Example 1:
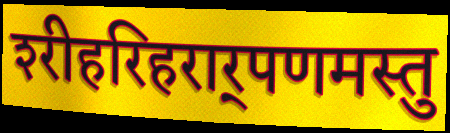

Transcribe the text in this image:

श्रीहरिहरार्पणमस्तु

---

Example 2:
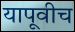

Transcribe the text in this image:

यापूवीच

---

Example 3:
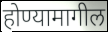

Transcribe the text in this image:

होण्यामागील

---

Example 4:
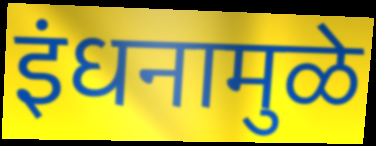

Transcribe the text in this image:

इंधनामुळे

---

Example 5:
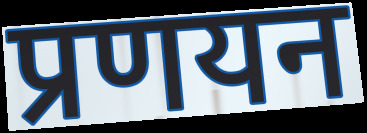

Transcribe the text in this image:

प्रणयन